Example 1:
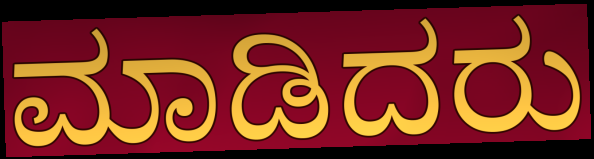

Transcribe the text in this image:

ಮಾಡಿದರು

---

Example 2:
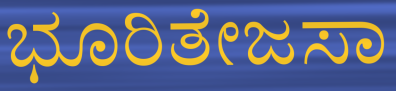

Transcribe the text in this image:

ಭೂರಿತೇಜಸಾ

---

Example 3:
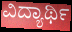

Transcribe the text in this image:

ವಿದ್ಯಾರ್ಥಿ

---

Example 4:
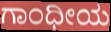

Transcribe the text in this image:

ಗಾಂಧೀಯ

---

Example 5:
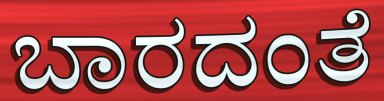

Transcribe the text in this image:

ಬಾರದಂತೆ